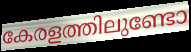
കേരളത്തിലുണ്ടോ